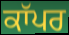
ਕਾੱਪਰ